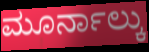
ಮೂರ್ನಾಲ್ಕು